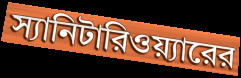
স্যানিটারিওয়্যারের